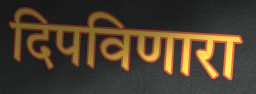
दिपविणारा